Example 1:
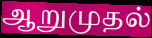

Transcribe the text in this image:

ஆறுமுதல்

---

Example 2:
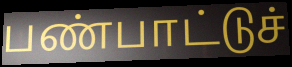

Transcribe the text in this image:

பண்பாட்டுச்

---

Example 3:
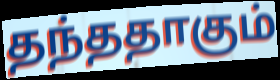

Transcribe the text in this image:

தந்ததாகும்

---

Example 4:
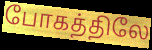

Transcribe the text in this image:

போகத்திலே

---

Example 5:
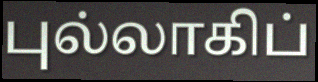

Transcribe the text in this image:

புல்லாகிப்